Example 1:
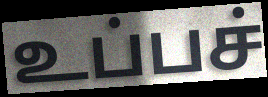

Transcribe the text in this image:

உப்பச்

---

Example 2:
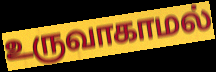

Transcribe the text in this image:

உருவாகாமல்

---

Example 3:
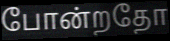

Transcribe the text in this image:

போன்றதோ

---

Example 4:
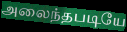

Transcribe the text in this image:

அலைந்தபடியே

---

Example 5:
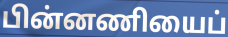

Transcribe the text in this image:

பின்னணியைப்